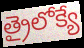
త్రైలోక్యే